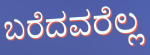
ಬರೆದವರೆಲ್ಲ